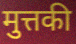
मुत्तकी